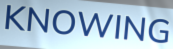
KNOWING